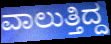
ವಾಲುತ್ತಿದ್ದ